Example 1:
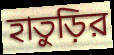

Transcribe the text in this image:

হাতুড়ির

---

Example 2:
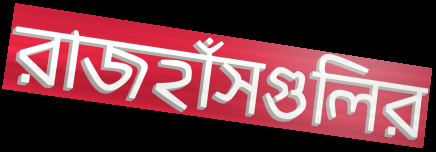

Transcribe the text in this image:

রাজহাঁসগুলির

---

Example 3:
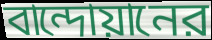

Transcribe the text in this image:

বান্দোয়ানের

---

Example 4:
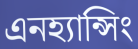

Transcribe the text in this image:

এনহ্যান্সিং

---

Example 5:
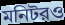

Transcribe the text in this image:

মনিটরও